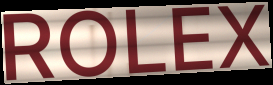
ROLEX